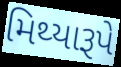
મિથ્યારૂપે